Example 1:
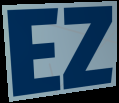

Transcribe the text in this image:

EZ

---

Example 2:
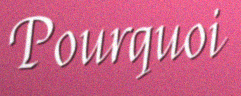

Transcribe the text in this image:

Pourquoi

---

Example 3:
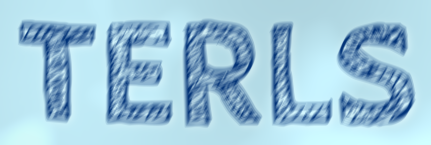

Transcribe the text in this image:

TERLS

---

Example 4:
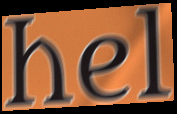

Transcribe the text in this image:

hel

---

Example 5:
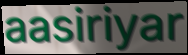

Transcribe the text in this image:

aasiriyar